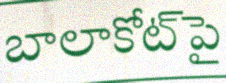
బాలాకోట్‌పై